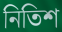
নিতিশ